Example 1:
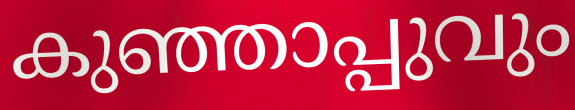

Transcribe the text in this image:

കുഞ്ഞാപ്പുവും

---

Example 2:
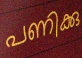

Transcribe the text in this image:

പണിക്കു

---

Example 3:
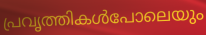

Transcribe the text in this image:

പ്രവൃത്തികൾപോലെയും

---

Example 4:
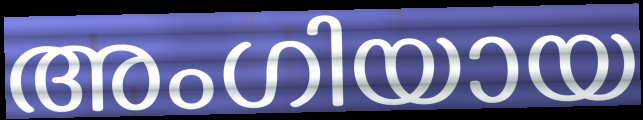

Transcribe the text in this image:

അംഗിയായ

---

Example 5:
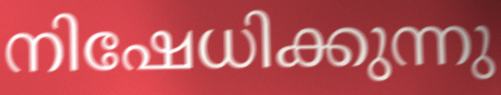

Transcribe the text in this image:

നിഷേധിക്കുന്നു